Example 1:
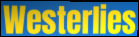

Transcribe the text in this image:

Westerlies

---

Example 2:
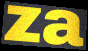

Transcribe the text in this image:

za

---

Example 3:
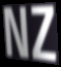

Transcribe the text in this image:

NZ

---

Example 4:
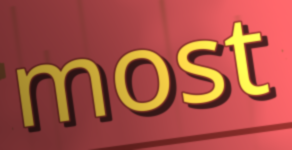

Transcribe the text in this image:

most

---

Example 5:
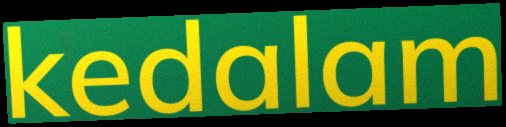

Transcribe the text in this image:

kedalam